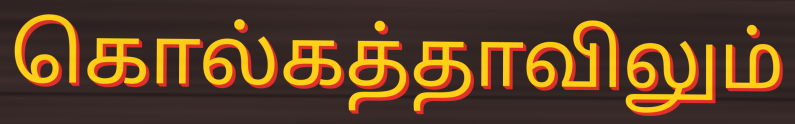
கொல்கத்தாவிலும்